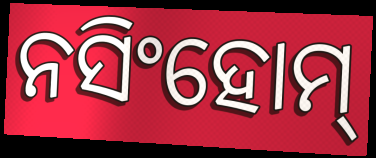
ନସିଂହୋମ୍